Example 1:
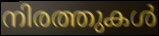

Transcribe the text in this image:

നിരത്തുകൾ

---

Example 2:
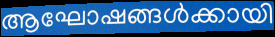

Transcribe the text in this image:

ആഘോഷങ്ങൾക്കായി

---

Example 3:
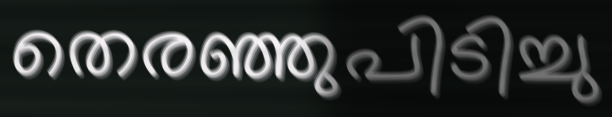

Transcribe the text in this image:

തെരഞ്ഞുപിടിച്ചു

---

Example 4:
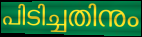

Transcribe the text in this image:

പിടിച്ചതിനും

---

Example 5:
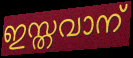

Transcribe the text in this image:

ഇസ്തവാന്